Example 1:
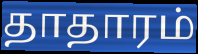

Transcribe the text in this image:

தாதாரம்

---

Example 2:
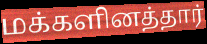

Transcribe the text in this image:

மக்களினத்தார்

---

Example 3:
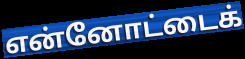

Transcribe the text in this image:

என்னோட்டைக்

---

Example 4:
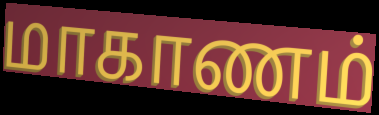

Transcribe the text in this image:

மாகாணம்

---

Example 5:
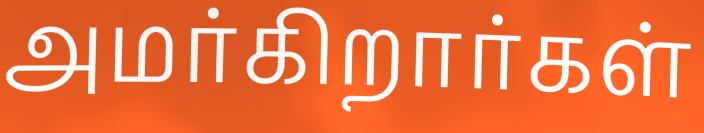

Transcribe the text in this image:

அமர்கிறார்கள்